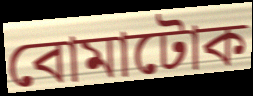
বোমাটোক